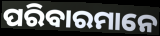
ପରିବାରମାନେ